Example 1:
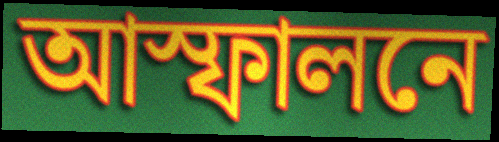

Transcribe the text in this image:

আস্ফালনে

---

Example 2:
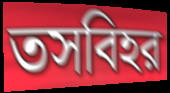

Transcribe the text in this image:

তসবিহর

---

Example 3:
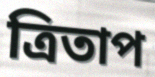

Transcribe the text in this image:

ত্রিতাপ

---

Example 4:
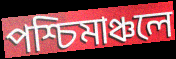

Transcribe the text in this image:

পশ্চিমাঞ্চলে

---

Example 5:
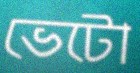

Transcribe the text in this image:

ভেটো